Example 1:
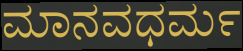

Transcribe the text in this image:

ಮಾನವಧರ್ಮ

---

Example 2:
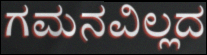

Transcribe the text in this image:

ಗಮನವಿಲ್ಲದ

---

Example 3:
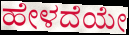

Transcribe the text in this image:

ಹೇಳದೆಯೇ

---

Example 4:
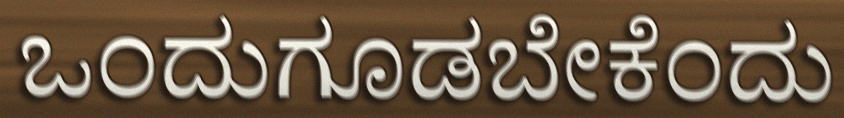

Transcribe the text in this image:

ಒಂದುಗೂಡಬೇಕೆಂದು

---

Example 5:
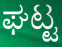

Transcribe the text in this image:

ಘಟ್ಟ